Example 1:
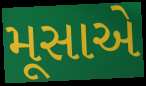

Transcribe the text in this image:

મૂસાએ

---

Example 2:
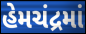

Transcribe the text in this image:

હેમચંદ્રમાં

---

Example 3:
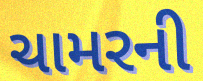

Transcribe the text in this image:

ચામરની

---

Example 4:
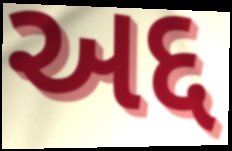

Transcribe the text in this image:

અદ્દ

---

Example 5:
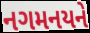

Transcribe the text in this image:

નગમનયને